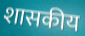
शासकीय